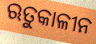
ଋତୁକାଳୀନ